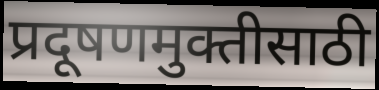
प्रदूषणमुक्तीसाठी